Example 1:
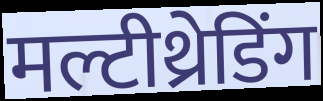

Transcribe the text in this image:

मल्टीथ्रेडिंग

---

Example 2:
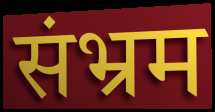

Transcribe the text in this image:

संभ्रम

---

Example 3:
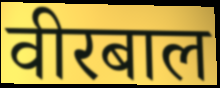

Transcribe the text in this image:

वीरबाल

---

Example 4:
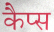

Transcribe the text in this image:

कैप्स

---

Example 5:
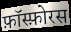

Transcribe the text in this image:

फ़ॉस्फ़ोरस